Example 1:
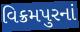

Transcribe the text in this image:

વિક્રમપુરનાં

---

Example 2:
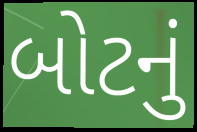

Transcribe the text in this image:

બોટનું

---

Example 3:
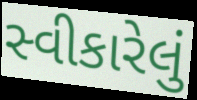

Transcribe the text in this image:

સ્વીકારેલું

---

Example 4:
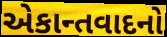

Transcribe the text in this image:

એકાન્તવાદનો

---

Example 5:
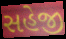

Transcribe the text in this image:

સહેજી